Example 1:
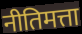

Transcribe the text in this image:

नीतिमत्ता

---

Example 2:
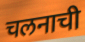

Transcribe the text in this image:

चलनाची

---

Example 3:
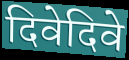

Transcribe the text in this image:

दिवेदिवे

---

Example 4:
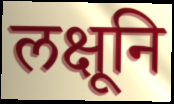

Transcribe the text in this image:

लक्षूनि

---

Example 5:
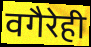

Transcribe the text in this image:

वगैरेही